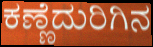
ಕಣ್ಣೆದುರಿಗಿನ